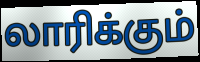
லாரிக்கும்